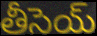
తీసెయ్